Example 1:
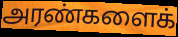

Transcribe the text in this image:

அரண்களைக்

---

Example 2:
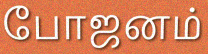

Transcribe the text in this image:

போஜனம்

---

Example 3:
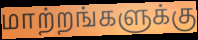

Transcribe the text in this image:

மாற்றங்களுக்கு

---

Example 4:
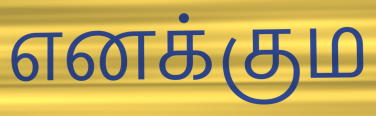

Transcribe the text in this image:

எனக்கும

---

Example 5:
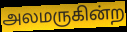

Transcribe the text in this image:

அலமருகின்ற